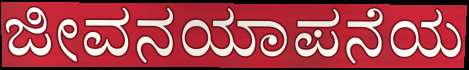
ಜೀವನಯಾಪನೆಯ